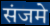
संजमे